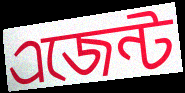
এজেন্ট